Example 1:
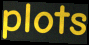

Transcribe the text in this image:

plots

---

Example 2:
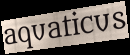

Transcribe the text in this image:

aquaticus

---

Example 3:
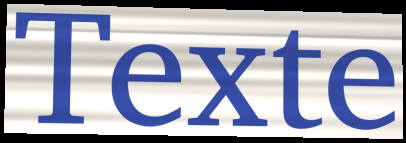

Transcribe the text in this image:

Texte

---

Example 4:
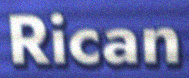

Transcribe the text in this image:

Rican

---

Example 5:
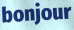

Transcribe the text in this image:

bonjour